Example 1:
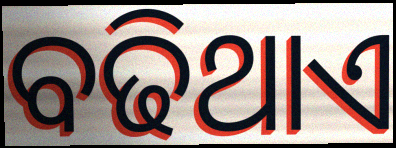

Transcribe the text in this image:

ବଢିଥାଏ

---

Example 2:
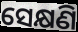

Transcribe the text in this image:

ସେକ୍ଷଣି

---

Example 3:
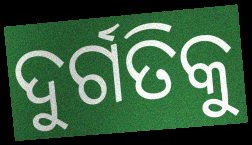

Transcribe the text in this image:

ଦୁର୍ଗତିକୁ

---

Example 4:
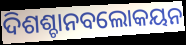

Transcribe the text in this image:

ଦିଶଶ୍ଚାନବଲୋକୟନ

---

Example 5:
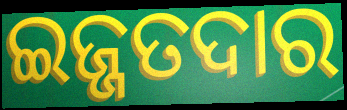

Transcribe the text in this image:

ଇଜ୍ଜତଦାର